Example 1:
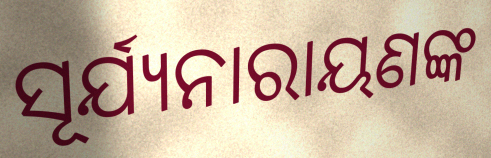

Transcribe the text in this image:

ସୂର୍ଯ୍ୟନାରାୟଣଙ୍କ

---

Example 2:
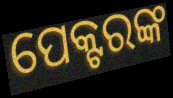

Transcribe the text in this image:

ପେକ୍ଟରଙ୍କ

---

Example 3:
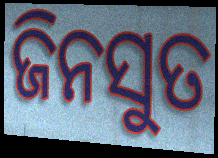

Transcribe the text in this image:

ଜିନସୁତ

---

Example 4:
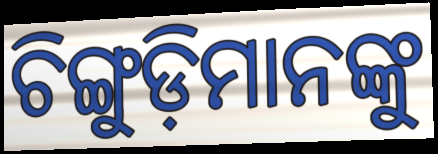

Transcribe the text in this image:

ଚିଙ୍ଗୁଡ଼ିମାନଙ୍କୁ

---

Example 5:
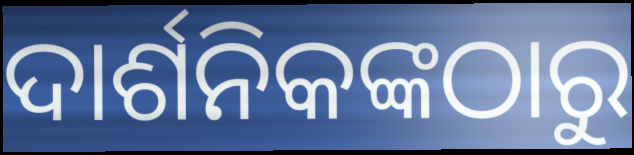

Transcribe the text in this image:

ଦାର୍ଶନିକଙ୍କଠାରୁ